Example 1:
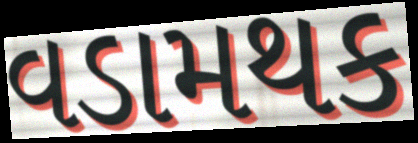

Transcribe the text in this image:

વડામથક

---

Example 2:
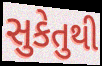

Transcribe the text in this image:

સુકેતુથી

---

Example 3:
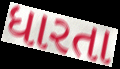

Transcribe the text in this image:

ધારતા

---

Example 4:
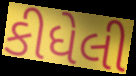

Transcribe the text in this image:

કીધેલી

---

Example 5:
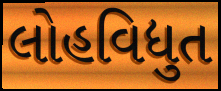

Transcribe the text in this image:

લોહવિદ્યુત